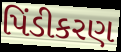
પિંડીકરણ